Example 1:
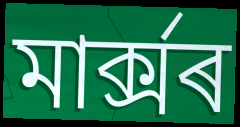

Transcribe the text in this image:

মাৰ্ক্সৰ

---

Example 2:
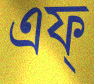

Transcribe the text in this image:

এফ্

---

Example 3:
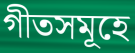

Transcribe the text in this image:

গীতসমূহে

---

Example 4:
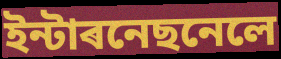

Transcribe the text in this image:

ইন্টাৰনেছনেলে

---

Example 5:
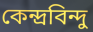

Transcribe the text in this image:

কেন্দ্ৰবিন্দু